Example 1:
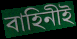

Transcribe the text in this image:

বাহিনীই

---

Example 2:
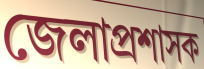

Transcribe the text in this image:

জেলাপ্রশাসক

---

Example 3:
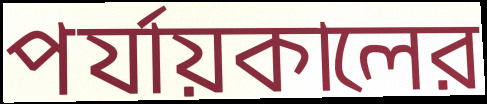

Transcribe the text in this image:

পর্যায়কালের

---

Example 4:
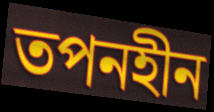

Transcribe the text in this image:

তপনহীন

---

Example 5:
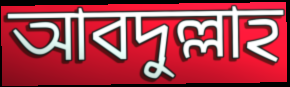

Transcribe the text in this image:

আবদুল্লাহ